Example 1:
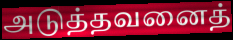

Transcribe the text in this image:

அடுத்தவனைத்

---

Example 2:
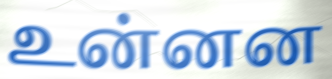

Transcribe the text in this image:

உன்னன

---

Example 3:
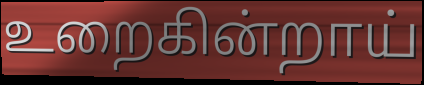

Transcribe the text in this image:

உறைகின்றாய்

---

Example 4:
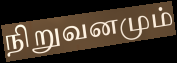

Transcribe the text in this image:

நிறுவனமும்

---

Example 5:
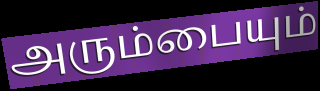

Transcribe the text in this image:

அரும்பையும்